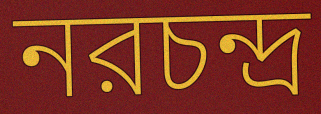
নরচন্দ্র